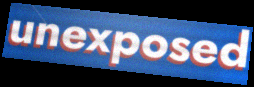
unexposed